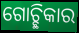
ଗୋଚ୍ଛିକାର